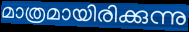
മാത്രമായിരിക്കുന്നു